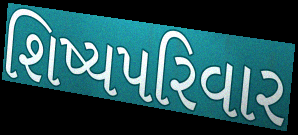
શિષ્યપરિવાર